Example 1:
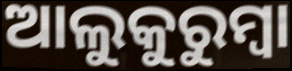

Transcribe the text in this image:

ଆଲୁକୁରୁମ୍ବା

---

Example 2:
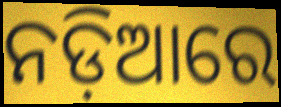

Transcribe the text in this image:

ନଡ଼ିଆରେ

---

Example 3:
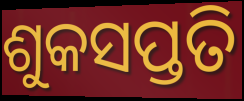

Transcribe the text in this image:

ଶୁକସପ୍ତତି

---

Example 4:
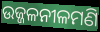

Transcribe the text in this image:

ଉଜ୍ଜଳନୀଳମଣି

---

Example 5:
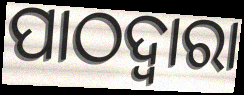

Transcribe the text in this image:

ପାଠଦ୍ଵାରା